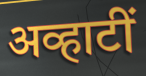
अव्हाटीं